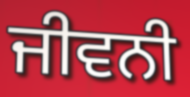
ਜੀਵਨੀ